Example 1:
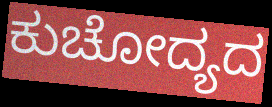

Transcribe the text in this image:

ಕುಚೋದ್ಯದ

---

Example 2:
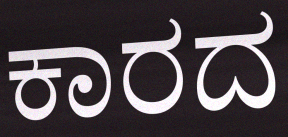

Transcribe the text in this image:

ಕಾರದ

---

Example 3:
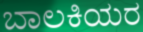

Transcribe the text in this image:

ಬಾಲಕಿಯರ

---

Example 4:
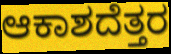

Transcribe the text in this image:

ಆಕಾಶದೆತ್ತರ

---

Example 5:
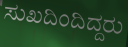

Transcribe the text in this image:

ಸುಖದಿಂದಿದ್ದರು